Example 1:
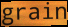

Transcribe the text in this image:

grain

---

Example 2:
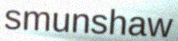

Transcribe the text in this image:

smunshaw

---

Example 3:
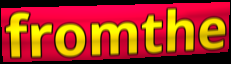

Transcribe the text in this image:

fromthe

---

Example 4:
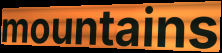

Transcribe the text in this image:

mountains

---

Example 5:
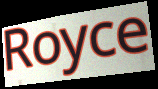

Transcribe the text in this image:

Royce